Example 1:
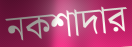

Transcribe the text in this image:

নকশাদার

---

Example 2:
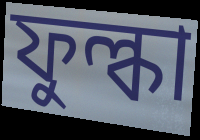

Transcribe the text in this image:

ফুল্কা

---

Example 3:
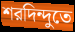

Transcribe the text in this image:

শরদিন্দুতে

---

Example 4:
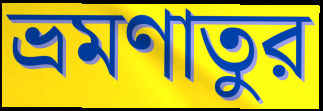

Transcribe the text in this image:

ভ্রমণাতুর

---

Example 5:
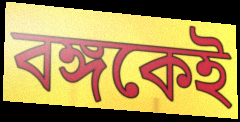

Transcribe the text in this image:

বঙ্গকেই